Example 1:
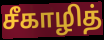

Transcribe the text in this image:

சீகாழித்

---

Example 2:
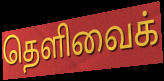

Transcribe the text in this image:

தெளிவைக்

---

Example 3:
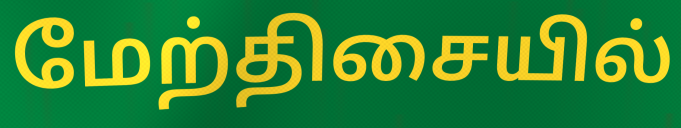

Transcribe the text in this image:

மேற்திசையில்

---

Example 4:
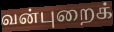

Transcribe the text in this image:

வன்புறைக்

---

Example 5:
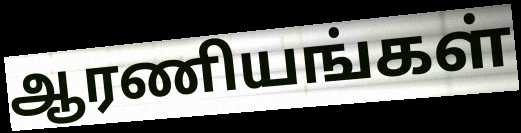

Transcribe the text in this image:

ஆரணியங்கள்